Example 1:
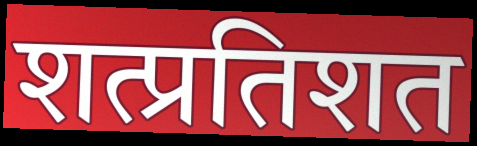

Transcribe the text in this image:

शत्प्रतिशत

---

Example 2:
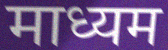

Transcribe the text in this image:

माध्यम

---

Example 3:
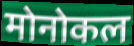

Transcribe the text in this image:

मोनोकल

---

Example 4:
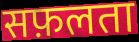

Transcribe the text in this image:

सफ़लता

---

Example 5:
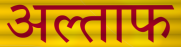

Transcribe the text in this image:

अल्ताफ